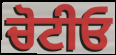
ਚੋਟੀਓ